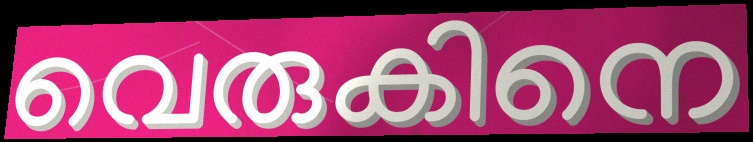
വെരുകിനെ